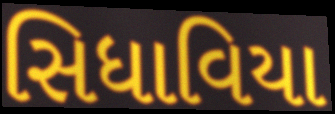
સિધાવિયા